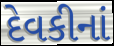
દેવકીનાં